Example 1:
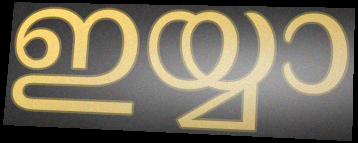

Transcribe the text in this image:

ഇയ്യാ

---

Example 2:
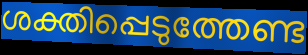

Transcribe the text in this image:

ശക്തിപ്പെടുത്തേണ്ട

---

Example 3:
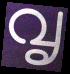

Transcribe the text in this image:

വൃ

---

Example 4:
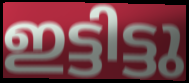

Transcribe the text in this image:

ഇട്ടിട്ടു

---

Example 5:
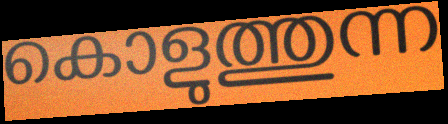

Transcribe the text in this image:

കൊളുത്തുന്ന